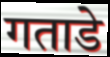
गताडे